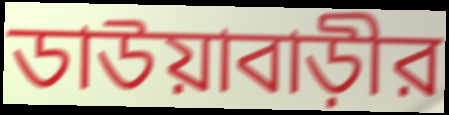
ডাউয়াবাড়ীর